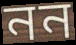
নন